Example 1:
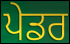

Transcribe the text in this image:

ਪੇਡਰ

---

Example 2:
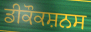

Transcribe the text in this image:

ਡੀਕੌਕਸ਼ਨਸ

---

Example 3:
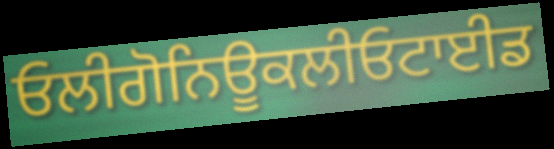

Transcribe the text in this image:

ਓਲੀਗੋਨਿਊਕਲੀਓਟਾਈਡ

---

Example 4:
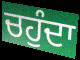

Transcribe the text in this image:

ਚਹੁੰਦਾ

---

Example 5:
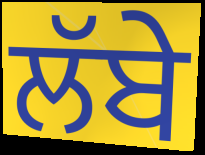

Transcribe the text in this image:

ਲੱਬੇ